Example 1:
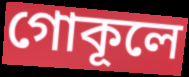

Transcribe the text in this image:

গোকূলে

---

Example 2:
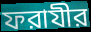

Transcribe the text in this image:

ফরাযীর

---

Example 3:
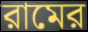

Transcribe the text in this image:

রামের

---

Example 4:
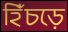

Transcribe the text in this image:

হিঁচড়ে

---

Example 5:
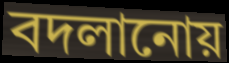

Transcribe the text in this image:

বদলানোয়